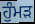
ਹੁੰਮੜ